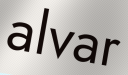
alvar